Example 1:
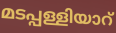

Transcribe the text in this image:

മടപ്പള്ളിയാറ്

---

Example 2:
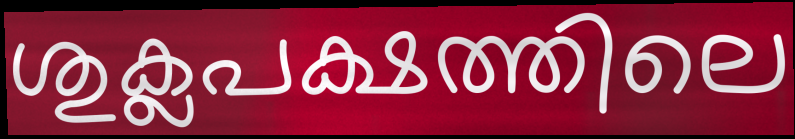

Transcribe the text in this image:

ശുക്ലപക്ഷത്തിലെ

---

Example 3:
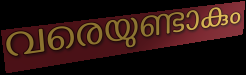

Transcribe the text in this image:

വരെയുണ്ടാകും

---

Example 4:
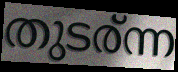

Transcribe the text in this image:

തുടര്ന്ന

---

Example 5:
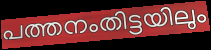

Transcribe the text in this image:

പത്തനംതിട്ടയിലും